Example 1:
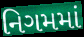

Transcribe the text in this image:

નિગમમાં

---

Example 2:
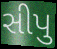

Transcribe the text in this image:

સીપુ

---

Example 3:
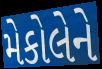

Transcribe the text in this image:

મેકોલેને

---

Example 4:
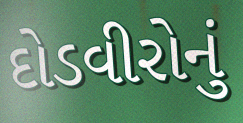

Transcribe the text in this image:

દોડવીરોનું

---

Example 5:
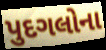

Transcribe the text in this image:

પુદગલોના